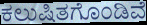
ಕಲುಷಿತಗೊಂಡಿವೆ